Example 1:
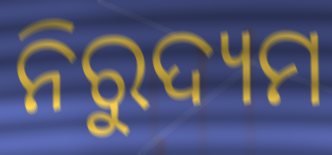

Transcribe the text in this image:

ନିରୁଦ୍ୟମ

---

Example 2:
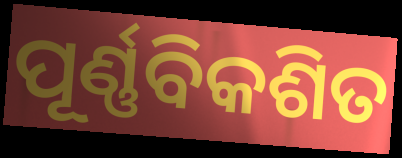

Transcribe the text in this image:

ପୂର୍ଣ୍ଣବିକଶିତ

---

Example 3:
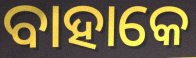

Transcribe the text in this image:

ବାହାକେ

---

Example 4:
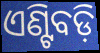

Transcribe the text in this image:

ଏଣ୍ଟିବଡ଼ି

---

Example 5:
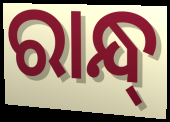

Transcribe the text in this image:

ରାନ୍ଧ୍